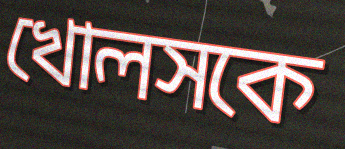
খোলসকে